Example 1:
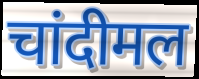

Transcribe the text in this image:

चांदीमल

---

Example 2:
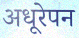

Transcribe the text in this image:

अधूरेपन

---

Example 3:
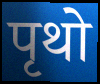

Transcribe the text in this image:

पृथो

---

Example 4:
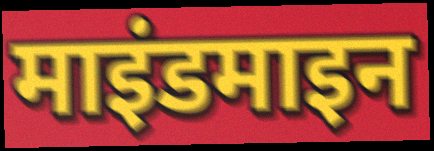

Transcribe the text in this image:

माइंडमाइन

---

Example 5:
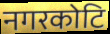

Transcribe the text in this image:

नगरकोटि